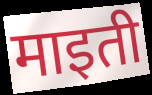
माइती